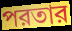
পরতার